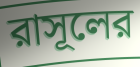
রাসূলের